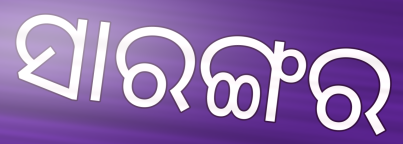
ସାରଙ୍ଗର